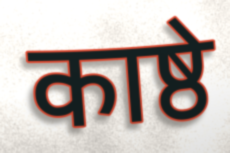
काष्ठे